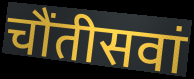
चौंतीसवां